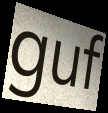
guf